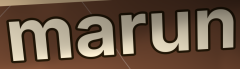
marun